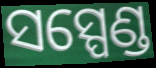
ସସ୍ପେଣ୍ଡ